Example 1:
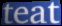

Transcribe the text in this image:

teat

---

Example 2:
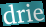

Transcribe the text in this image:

drie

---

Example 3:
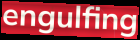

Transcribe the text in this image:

engulfing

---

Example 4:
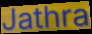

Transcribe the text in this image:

Jathra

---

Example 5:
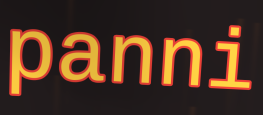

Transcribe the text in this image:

panni